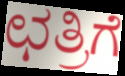
ಛತ್ರಿಗೆ